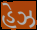
હેઝ